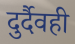
दुर्दैवही